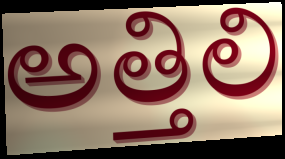
అత్తిలి